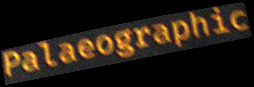
Palaeographic